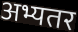
अभ्यतर